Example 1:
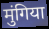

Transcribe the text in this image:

मुंगिया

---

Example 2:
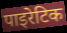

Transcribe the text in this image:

पाइरेटिक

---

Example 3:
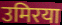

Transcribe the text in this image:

उमिरया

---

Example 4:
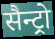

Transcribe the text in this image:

सैन्ट्रो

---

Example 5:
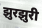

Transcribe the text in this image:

झुरझुरी